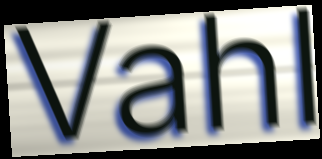
Vahl